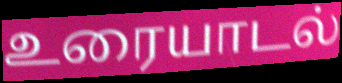
உரையாடல்